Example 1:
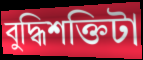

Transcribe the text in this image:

বুদ্ধিশক্তিটা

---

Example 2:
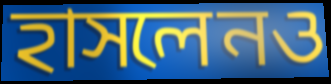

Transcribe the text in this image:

হাসলেনও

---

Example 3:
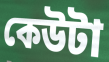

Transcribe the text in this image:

কেউটা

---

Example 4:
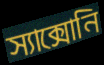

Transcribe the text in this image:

স্যাক্সোনি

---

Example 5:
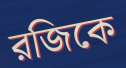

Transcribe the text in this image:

রজিকে